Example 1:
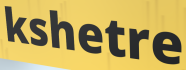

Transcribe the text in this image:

kshetre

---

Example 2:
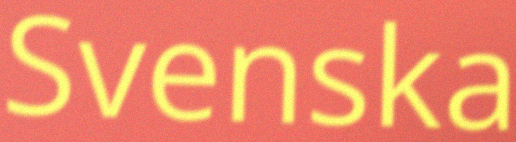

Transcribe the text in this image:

Svenska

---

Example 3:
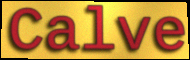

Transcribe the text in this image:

Calve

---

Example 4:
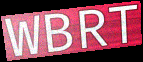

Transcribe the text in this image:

WBRT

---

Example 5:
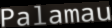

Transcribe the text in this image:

Palamau